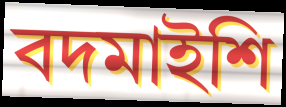
বদমাইশি